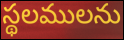
స్థలములను